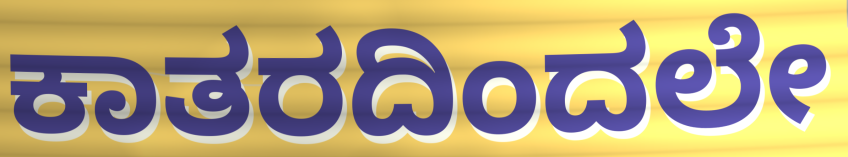
ಕಾತರದಿಂದಲೇ